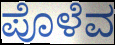
ಪೊಳೆವ